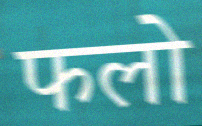
फलो